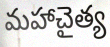
మహాచైత్య